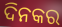
ଦିନକର